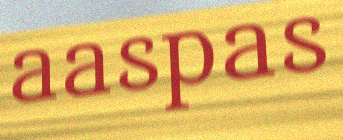
aaspas